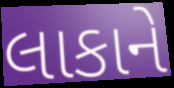
લાકાને